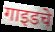
गाइडचे